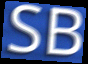
SB